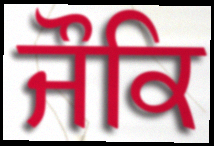
ਜੌਕਿ